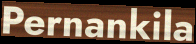
Pernankila